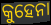
କୁହେନା